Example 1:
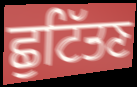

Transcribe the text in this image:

ਛੁਟਿੱਤਣ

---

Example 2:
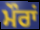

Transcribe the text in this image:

ਮੌਰਾਂ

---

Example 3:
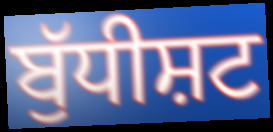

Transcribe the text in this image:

ਬੁੱਧੀਸ਼ਟ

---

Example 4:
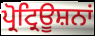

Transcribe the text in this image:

ਪ੍ਰੋਟ੍ਰਿਊਸ਼ਨਾਂ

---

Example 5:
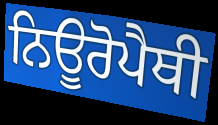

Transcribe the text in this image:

ਨਿਊਰੋਪੈਥੀ